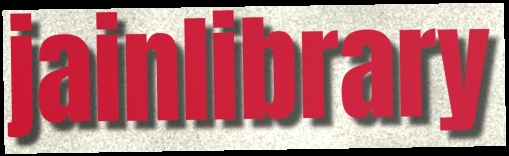
jainlibrary